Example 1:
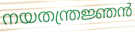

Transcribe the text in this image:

നയതന്ത്രജ്ഞൻ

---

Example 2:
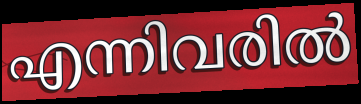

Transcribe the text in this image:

എന്നിവരിൽ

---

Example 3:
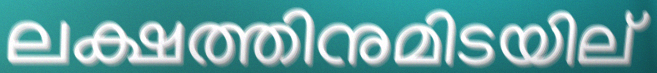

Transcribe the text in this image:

ലക്ഷത്തിനുമിടയില്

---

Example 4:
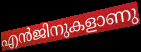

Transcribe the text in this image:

എൻജിനുകളാണു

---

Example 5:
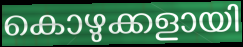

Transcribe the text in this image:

കൊഴുക്കളായി